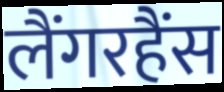
लैंगरहैंस